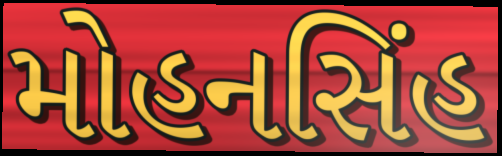
મોહનસિંહ